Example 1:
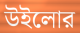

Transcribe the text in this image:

উইলোর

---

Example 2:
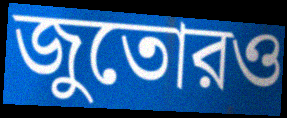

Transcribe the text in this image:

জুতোরও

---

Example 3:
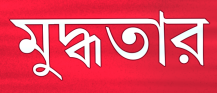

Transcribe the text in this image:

মুদ্ধতার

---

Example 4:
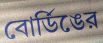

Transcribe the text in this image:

বোর্ডিঙের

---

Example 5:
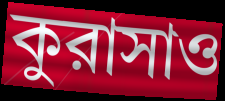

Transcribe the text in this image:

কুরাসাও